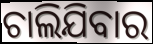
ଚାଲିଯିବାର